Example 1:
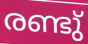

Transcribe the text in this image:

രണ്ടു്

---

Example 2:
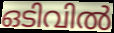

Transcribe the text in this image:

ഒടിവിൽ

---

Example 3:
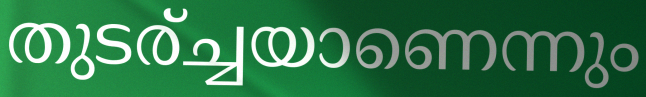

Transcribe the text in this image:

തുടര്ച്ചയാണെന്നും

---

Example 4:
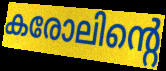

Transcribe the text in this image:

കരോലിന്റെ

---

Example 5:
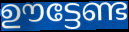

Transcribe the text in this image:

ഊട്ടേണ്ട